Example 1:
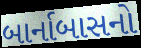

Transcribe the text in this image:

બાર્નાબાસનો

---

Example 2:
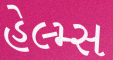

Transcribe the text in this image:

હેલ્મ્સ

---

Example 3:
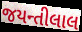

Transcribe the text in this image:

જયન્તીલાલ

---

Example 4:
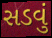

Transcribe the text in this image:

સડવું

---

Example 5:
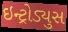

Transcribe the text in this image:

ઇન્ટ્રોડ્યુસ